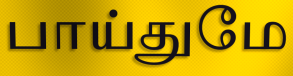
பாய்துமே